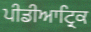
ਪੀਡੀਆਟ੍ਰਿਕ